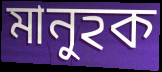
মানুহক